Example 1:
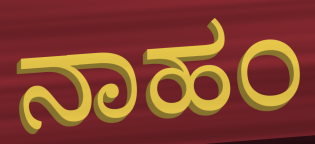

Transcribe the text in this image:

ನಾಹಂ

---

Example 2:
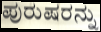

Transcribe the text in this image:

ಪುರುಷರನ್ನು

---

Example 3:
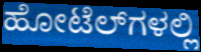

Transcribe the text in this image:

ಹೋಟೆಲ್‌ಗಳಲ್ಲಿ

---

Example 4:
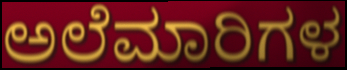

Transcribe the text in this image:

ಅಲೆಮಾರಿಗಳ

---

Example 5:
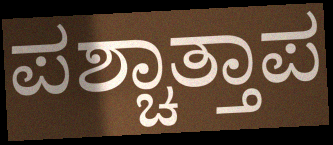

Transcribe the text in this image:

ಪಶ್ಚಾತ್ತಾಪ